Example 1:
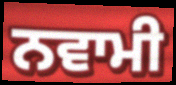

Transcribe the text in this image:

ਨਵਾਮੀ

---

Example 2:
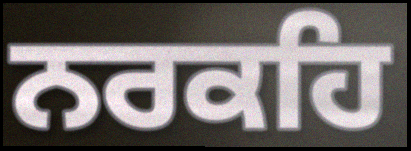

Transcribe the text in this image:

ਨਰਕਹਿ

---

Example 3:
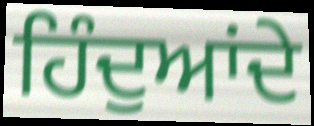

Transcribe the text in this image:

ਹਿੰਦੁਆਂਦੇ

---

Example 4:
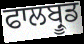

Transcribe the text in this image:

ਫਾਲਬ੍ਰੂਡ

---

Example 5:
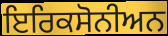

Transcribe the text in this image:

ਇਰਿਕਸੋਨੀਅਨ